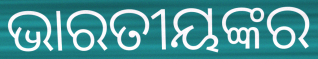
ଭାରତୀୟଙ୍କର